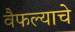
वैफल्याचे